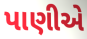
પાણીએ